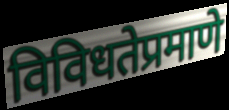
विविधतेप्रमाणे